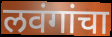
लवंगांचा